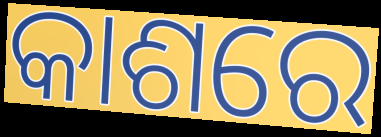
କାଶରେ